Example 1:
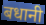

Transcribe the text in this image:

बधानी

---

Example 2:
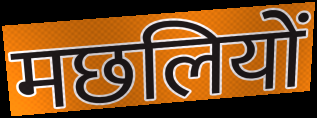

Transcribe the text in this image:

मछलियों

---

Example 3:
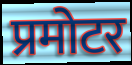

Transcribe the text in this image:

प्रमोटर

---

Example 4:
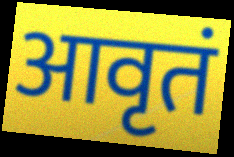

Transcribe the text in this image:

आवृतं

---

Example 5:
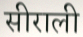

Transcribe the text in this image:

सीराली